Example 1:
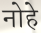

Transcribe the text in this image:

नोहे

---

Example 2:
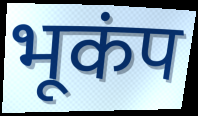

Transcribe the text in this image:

भूकंप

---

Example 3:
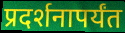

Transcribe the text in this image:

प्रदर्शनापर्यंत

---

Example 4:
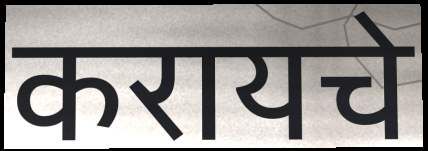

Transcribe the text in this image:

करायचे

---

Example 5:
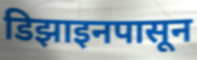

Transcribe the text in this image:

डिझाइनपासून